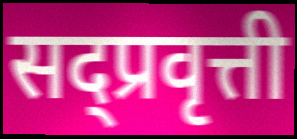
सद्प्रवृत्ती